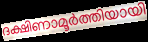
ദക്ഷിണാമൂർത്തിയായി